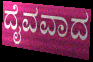
ದೈವವಾದ